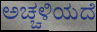
ಅಚ್ಚಳಿಯದೆ